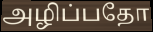
அழிப்பதோ